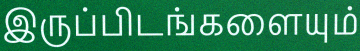
இருப்பிடங்களையும்